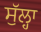
ਸੁੱਲ੍ਹਾ